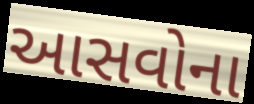
આસવોના